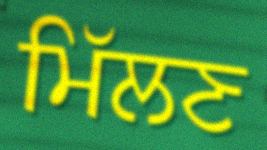
ਮਿੱਲਣ